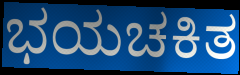
ಭಯಚಕಿತ